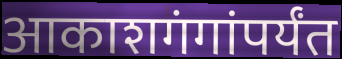
आकाशगंगांपर्यंत